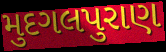
મુદગલપુરાણ